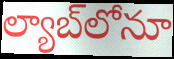
ల్యాబ్‌లోనూ